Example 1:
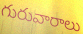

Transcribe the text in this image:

గురువారాలు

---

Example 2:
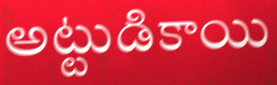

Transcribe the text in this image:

అట్టుడికాయి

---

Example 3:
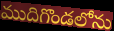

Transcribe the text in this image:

ముదిగొండలోను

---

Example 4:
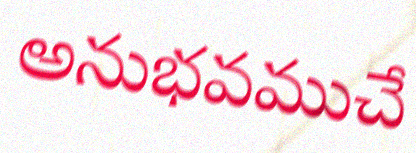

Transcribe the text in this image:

అనుభవముచే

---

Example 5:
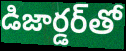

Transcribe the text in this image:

డిజార్డర్‌తో